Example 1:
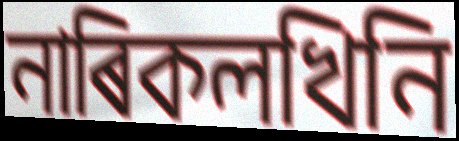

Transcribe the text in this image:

নাৰিকলখিনি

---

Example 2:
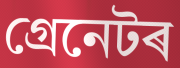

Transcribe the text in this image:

গ্ৰেনেটৰ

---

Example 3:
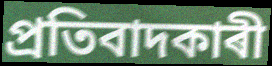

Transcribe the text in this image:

প্ৰতিবাদকাৰী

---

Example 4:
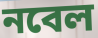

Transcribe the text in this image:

নবেল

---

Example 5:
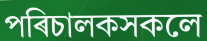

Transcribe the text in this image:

পৰিচালকসকলে